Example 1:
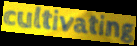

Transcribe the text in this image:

cultivating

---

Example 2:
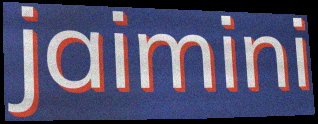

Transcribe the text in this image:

jaimini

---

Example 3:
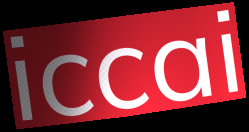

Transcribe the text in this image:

iccai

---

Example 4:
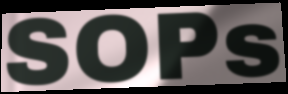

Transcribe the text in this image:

SOPs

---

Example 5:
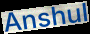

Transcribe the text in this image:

Anshul